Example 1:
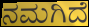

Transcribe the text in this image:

ನಮಗಿದೆ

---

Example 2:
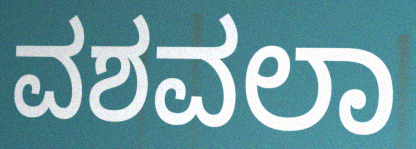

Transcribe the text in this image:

ವಶವಲಾ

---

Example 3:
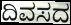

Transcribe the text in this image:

ದಿವಸದ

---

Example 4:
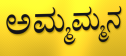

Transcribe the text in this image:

ಅಮ್ಮಮ್ಮನ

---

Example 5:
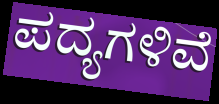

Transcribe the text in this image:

ಪದ್ಯಗಳಿವೆ